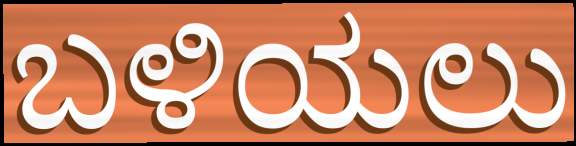
ಬಳಿಯಲು